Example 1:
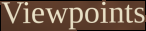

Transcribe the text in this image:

Viewpoints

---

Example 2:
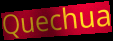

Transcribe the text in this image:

Quechua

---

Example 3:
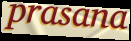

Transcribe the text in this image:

prasana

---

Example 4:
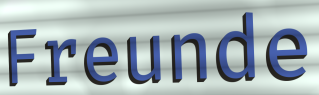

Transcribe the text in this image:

Freunde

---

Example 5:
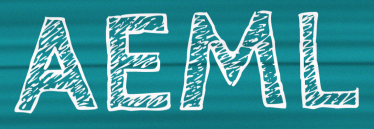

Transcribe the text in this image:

AEML